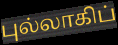
புல்லாகிப்